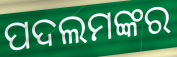
ପଦଲମଙ୍କର